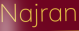
Najran